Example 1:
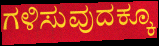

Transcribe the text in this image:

ಗಳಿಸುವುದಕ್ಕೂ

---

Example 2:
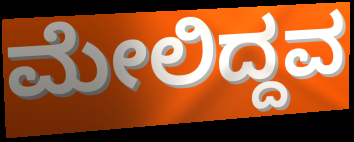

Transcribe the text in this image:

ಮೇಲಿದ್ದವ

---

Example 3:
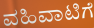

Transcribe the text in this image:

ವಹಿವಾಟಿಗೆ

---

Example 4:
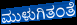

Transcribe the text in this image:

ಮುಳುಗಿತಂತೆ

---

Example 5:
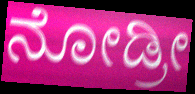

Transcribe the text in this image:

ನೋಡ್ರೀ